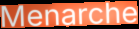
Menarche